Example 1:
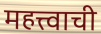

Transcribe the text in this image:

महत्त्वाची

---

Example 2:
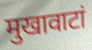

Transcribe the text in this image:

मुखावाटां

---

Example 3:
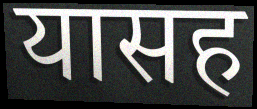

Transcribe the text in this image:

यासह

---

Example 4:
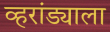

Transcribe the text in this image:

व्हरांड्याला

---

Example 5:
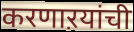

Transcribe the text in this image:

करणाऱयांची